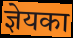
ज्ञेयका